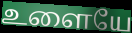
உளையே